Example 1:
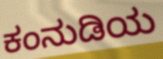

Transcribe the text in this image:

ಕಂನುಡಿಯ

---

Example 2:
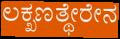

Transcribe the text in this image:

ಲಕ್ಖಣತ್ಥೇರೇನ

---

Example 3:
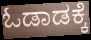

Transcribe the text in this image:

ಓಡಾಡಕ್ಕೆ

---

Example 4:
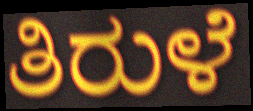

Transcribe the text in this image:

ತಿರುಳೆ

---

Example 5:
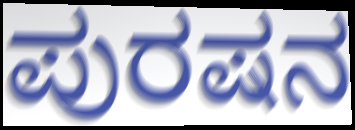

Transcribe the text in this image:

ಪುರಷನ